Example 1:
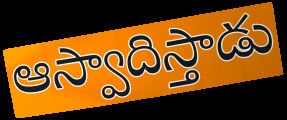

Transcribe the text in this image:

ఆస్వాదిస్తాడు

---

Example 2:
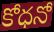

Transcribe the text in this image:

కోధనో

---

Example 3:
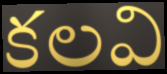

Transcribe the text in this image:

కలవి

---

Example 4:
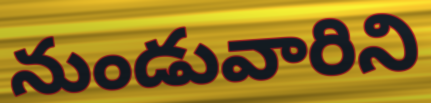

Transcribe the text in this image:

నుండువారిని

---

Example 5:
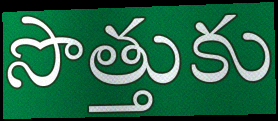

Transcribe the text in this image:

సొత్తుకు